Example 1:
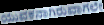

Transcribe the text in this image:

ಯುವಕನಾಗಿರುವಾಗಲೇ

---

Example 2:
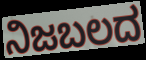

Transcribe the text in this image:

ನಿಜಬಲದ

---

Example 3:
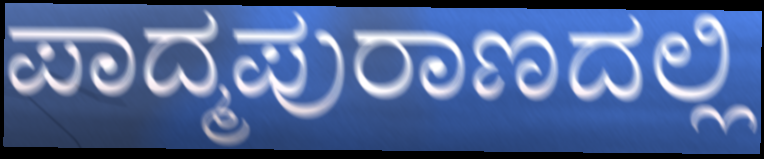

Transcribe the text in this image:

ಪಾದ್ಮಪುರಾಣದಲ್ಲಿ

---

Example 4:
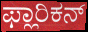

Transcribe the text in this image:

ಫ್ಲಾರಿಕನ್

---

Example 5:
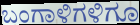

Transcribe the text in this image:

ಬಂಗಾಳಿಗಳಿಗೂ